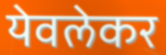
येवलेकर